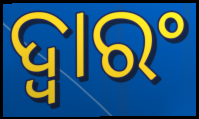
ଦ୍ୱାରଂ